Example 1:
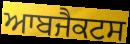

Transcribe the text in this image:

ਆਬਜੈਕਟਸ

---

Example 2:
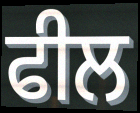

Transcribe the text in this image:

ਫੀਲ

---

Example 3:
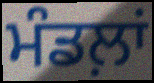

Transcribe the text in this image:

ਮੰਡਲ਼ਾਂ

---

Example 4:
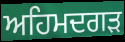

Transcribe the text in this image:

ਅਹਿਮਦਗੜ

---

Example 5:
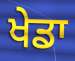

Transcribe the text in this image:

ਖੇਡਾ